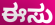
ಈಸು